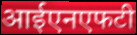
आईएनएफटी